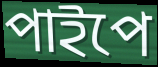
পাইপে